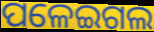
ପଳେଇଗଲ